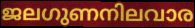
ജലഗുണനിലവാര